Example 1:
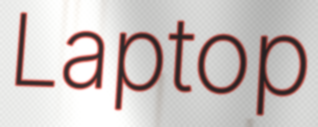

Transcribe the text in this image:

Laptop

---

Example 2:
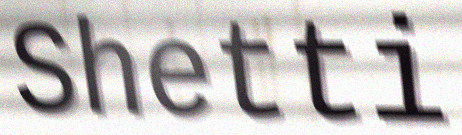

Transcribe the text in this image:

Shetti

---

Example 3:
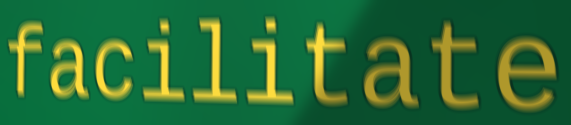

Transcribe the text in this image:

facilitate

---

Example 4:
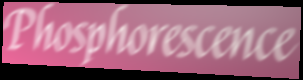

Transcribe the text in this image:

Phosphorescence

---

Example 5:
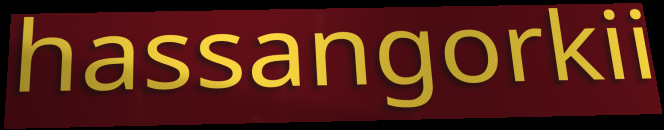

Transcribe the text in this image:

hassangorkii